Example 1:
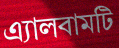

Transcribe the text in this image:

এ্যালবামটি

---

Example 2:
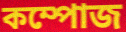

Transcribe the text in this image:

কম্পোজ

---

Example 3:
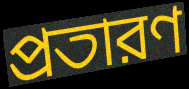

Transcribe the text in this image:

প্রতারণ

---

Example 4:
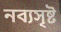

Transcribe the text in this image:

নব্যসৃষ্ট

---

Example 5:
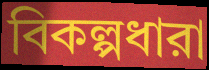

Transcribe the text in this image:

বিকল্পধারা